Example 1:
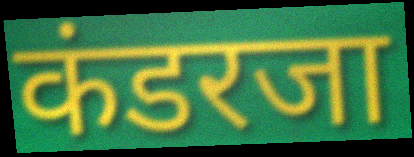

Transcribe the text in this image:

कंडरजा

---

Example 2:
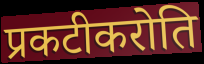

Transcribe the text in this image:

प्रकटीकरोति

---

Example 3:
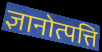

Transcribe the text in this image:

ज्ञानोत्पत्ति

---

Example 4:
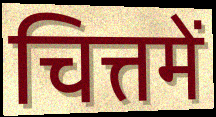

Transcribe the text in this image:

चित्तमें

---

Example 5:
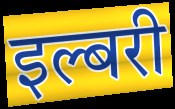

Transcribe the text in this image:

इल्बरी